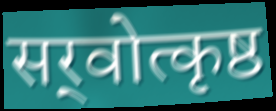
सर्वोत्कृष्ठ